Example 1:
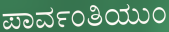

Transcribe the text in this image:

ಪಾರ್ವಂತಿಯುಂ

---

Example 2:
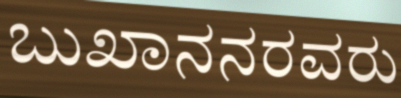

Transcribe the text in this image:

ಬುಖಾನನರವರು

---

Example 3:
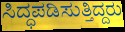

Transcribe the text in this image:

ಸಿದ್ಧಪಡಿಸುತ್ತಿದ್ದರು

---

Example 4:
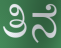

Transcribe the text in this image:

ತಿನೆ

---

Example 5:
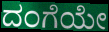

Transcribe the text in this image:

ದಂಗೆಯೇ